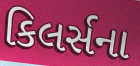
કિલર્સના